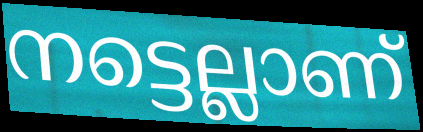
നട്ടെല്ലാണ്